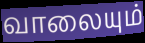
வாலையும்